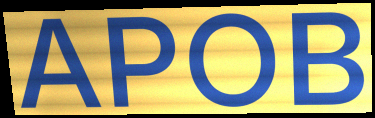
APOB